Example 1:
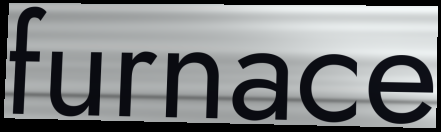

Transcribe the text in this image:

furnace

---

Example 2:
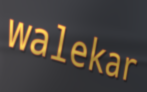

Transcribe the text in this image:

walekar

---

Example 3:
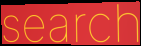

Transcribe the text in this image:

search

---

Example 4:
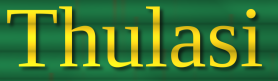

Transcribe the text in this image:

Thulasi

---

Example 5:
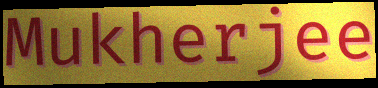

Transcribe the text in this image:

Mukherjee